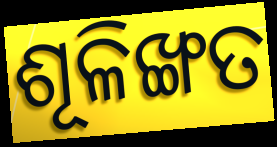
ଶୂଳିଙ୍ଖତ